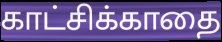
காட்சிக்காதை